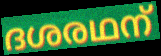
ദശരഥന്